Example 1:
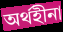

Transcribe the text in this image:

অর্থহীনা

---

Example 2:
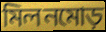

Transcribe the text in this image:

মিলনমোড়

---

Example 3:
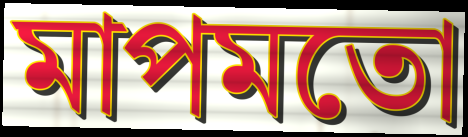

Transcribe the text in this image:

মাপমতো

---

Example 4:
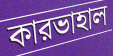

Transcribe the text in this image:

কারভাহাল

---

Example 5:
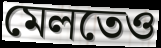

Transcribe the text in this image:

মেলতেও